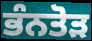
ਭੰਨਤੋੜ